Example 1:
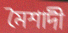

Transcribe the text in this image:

মৈশাদী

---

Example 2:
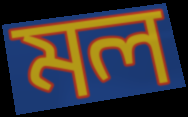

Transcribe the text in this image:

মল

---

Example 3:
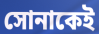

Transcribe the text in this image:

সোনাকেই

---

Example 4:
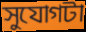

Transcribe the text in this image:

সুযোগটা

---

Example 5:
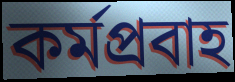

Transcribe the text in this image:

কর্মপ্রবাহ